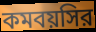
কমবয়সির